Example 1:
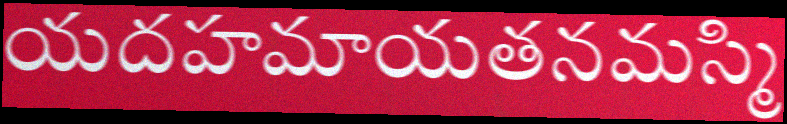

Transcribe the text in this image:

యదహమాయతనమస్మి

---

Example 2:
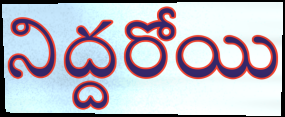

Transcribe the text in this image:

నిద్దరోయి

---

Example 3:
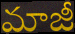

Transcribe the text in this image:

మాజీ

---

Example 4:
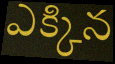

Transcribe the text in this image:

ఎక్కిన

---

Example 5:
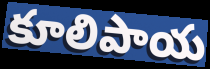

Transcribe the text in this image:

కూలిపాయ